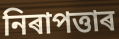
নিৰাপত্তাৰ